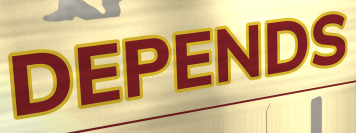
DEPENDS